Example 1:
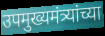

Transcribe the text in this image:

उपमुख्यमंत्र्यांच्या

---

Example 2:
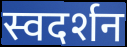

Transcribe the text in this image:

स्वदर्शन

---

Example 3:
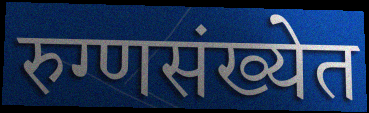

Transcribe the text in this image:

रुग्णसंख्येत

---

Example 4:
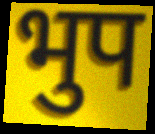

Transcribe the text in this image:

भुप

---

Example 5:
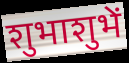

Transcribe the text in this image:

शुभाशुभें